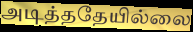
அடித்ததேயில்லை